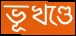
ভূখণ্ডে